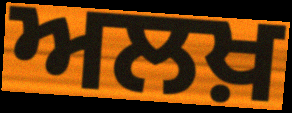
ਅਲਖ਼